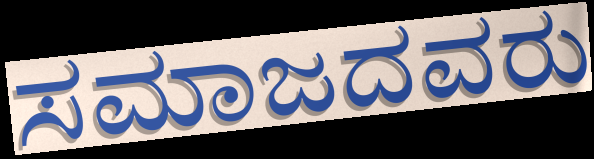
ಸಮಾಜದವರು